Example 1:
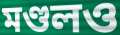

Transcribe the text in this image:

মণ্ডলও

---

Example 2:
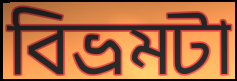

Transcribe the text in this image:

বিভ্রমটা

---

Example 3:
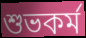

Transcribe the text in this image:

শুভকর্ম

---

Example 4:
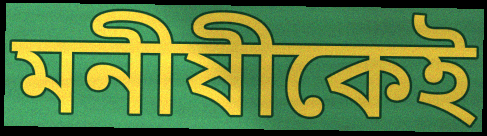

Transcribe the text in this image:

মনীষীকেই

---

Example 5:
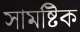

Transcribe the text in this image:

সামষ্টিক